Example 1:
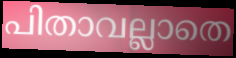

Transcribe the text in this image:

പിതാവല്ലാതെ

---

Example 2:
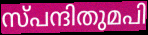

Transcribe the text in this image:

സ്പന്ദിതുമപി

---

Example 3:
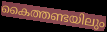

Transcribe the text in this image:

കൈത്തണ്ടയിലും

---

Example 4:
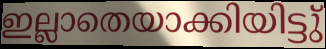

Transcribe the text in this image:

ഇല്ലാതെയാക്കിയിട്ടു്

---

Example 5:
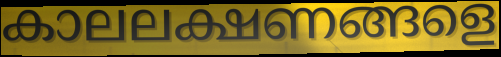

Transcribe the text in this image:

കാലലക്ഷണങ്ങളെ